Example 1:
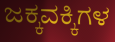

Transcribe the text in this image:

ಜಕ್ಕವಕ್ಕಿಗಳ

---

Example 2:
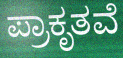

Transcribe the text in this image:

ಪ್ರಾಕೃತವೆ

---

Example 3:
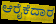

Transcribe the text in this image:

ಆರೈಕೆದಾರ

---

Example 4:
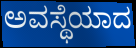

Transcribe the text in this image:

ಅವಸ್ಥೆಯಾದ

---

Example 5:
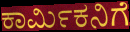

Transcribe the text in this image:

ಕಾರ್ಮಿಕನಿಗೆ